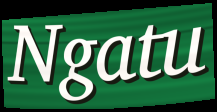
Ngatu